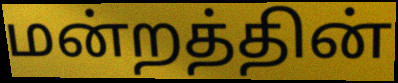
மன்றத்தின்